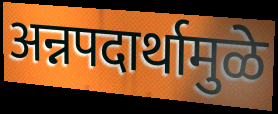
अन्नपदार्थामुळे